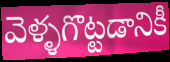
వెళ్ళగొట్టడానికీ